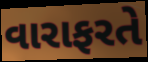
વારાફરતે